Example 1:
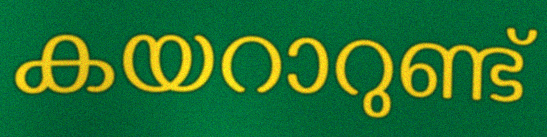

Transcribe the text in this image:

കയറാറുണ്ട്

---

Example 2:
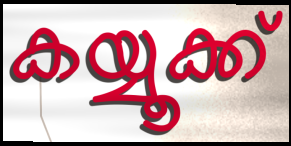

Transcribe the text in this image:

കയ്യൂക്ക്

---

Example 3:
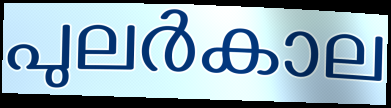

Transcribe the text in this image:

പുലർകാല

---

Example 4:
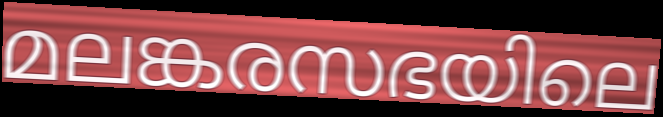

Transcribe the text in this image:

മലങ്കരസഭയിലെ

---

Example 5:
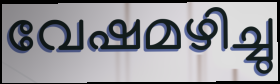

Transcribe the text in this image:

വേഷമഴിച്ചു